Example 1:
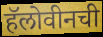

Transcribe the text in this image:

हॅलोवीनची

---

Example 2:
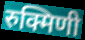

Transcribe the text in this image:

रुक्मिणी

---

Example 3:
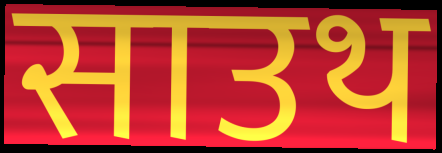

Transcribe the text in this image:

साउथ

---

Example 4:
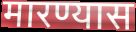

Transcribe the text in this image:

मारण्यास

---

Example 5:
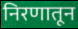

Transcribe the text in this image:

निरणातून